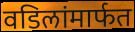
वडिलांमार्फत